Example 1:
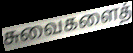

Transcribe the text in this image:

சுவைகளைத்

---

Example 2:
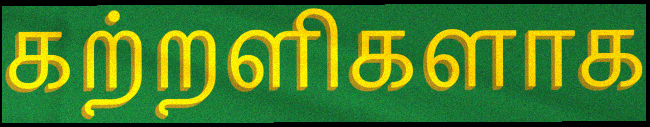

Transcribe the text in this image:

கற்றளிகளாக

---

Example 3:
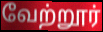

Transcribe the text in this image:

வேற்றூர்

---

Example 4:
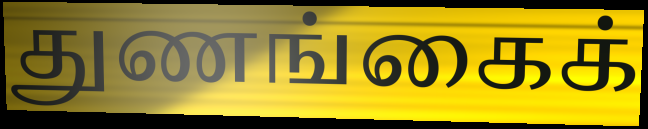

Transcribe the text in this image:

துணங்கைக்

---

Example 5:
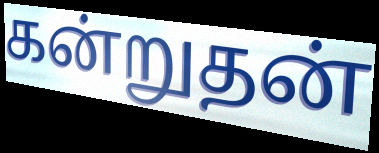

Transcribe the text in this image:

கன்றுதன்